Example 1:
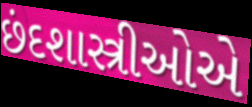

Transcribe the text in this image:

છંદશાસ્ત્રીઓએ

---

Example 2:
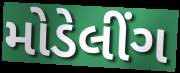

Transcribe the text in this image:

મોડેલીંગ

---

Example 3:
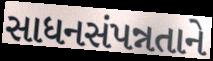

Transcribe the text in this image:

સાધનસંપન્નતાને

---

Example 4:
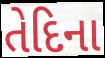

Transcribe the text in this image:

તેદિના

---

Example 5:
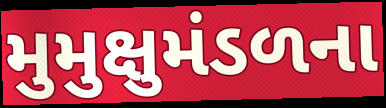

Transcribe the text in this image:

મુમુક્ષુમંડળના